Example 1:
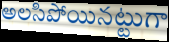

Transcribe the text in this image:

అలసిపోయినట్టుగా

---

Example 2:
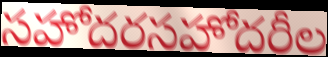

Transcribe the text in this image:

సహోదరసహోదరీల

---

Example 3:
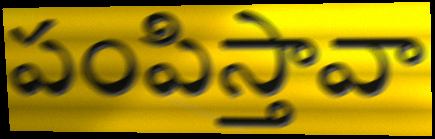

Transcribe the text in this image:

పంపిస్తావా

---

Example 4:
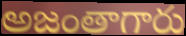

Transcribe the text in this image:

అజంతాగారు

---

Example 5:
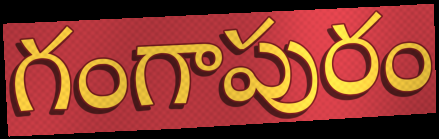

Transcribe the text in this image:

గంగాపురం